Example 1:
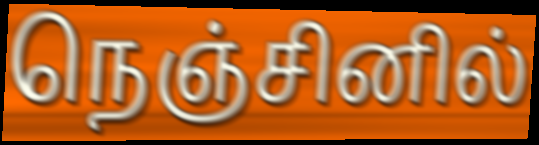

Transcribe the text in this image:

நெஞ்சினில்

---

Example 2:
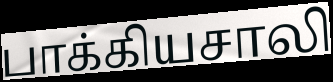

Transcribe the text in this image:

பாக்கியசாலி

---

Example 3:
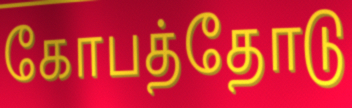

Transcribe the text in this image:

கோபத்தோடு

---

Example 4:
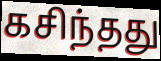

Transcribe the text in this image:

கசிந்தது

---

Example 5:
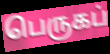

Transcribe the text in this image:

பெருகப்